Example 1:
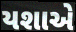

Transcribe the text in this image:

યશાએ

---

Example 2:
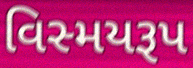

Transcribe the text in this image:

વિસ્મયરૂપ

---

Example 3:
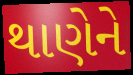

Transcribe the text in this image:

થાણેને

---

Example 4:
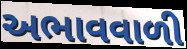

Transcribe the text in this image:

અભાવવાળી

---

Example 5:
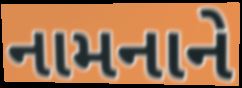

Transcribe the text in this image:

નામનાને